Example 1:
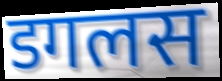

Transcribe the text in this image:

डगलस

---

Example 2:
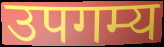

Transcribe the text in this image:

उपगम्य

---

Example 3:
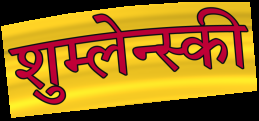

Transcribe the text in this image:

शुम्लेन्स्की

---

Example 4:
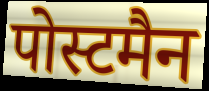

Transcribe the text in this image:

पोस्टमैन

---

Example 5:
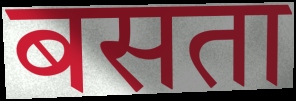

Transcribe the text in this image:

बसता